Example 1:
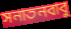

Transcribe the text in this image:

সনাতনবাবু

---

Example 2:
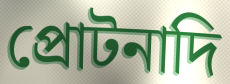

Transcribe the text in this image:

প্রোটনাদি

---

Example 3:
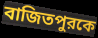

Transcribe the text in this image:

বাজিতপুরকে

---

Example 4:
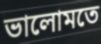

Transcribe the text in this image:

ভালোমতে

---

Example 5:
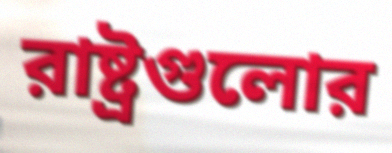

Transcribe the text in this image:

রাষ্ট্রগুলোর